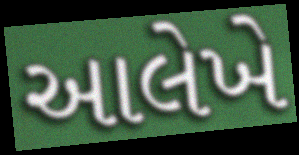
આલેખે